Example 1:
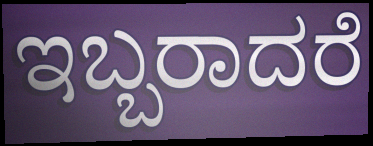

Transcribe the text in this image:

ಇಬ್ಬರಾದರೆ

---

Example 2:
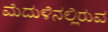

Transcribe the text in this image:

ಮೆದುಳಿನಲ್ಲಿರುವ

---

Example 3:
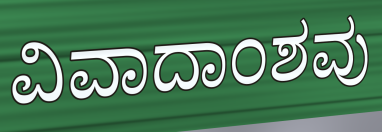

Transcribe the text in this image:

ವಿವಾದಾಂಶವು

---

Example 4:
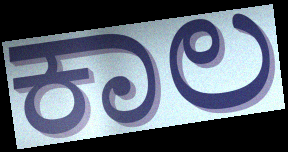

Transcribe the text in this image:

ಕಾಲ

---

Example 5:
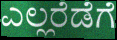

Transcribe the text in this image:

ಎಲ್ಲರೆಡೆಗೆ